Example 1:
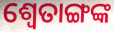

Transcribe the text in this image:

ଶ୍ୱେତାଙ୍ଗଙ୍କ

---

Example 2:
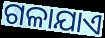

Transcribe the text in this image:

ଗଳାଯାଏ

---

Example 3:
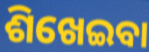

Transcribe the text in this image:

ଶିଖେଇବା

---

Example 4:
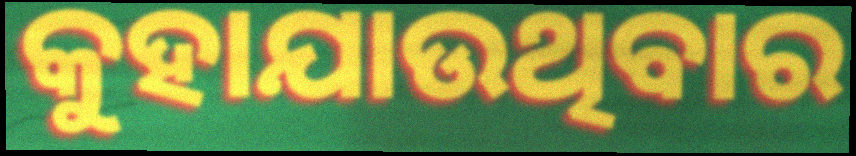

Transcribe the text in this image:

କୁହାଯାଉଥିବାର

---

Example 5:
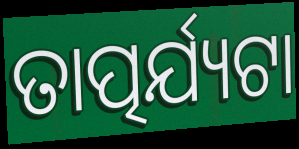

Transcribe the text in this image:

ତାତ୍ପର୍ଯ୍ୟଟା